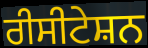
ਰੀਸੀਟੇਸ਼ਨ